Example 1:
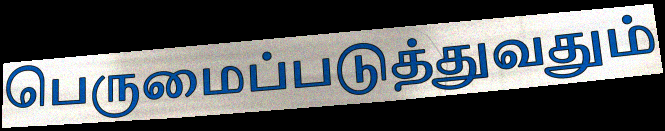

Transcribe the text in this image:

பெருமைப்படுத்துவதும்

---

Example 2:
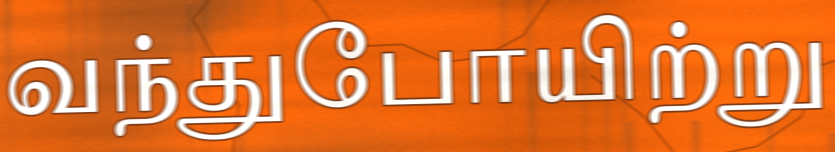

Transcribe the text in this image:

வந்துபோயிற்று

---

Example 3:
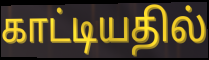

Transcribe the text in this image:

காட்டியதில்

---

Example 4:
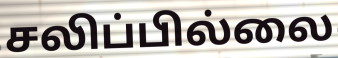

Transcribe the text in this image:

சலிப்பில்லை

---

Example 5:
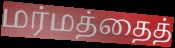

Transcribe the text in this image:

மர்மத்தைத்